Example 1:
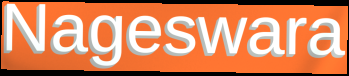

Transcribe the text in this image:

Nageswara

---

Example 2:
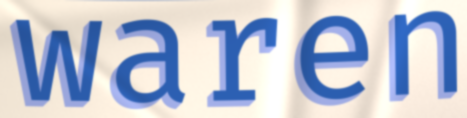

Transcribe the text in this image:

waren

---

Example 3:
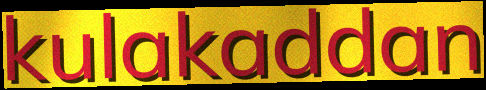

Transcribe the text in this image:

kulakaddan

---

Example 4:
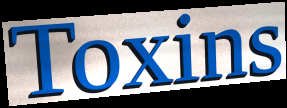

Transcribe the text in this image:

Toxins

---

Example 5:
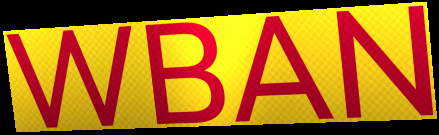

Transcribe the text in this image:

WBAN